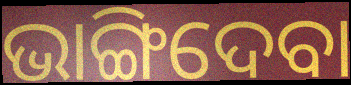
ଭାଙ୍ଗିଦେବା